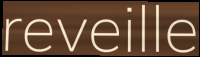
reveille